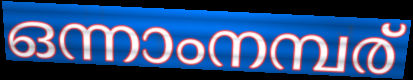
ഒന്നാംനമ്പര്